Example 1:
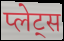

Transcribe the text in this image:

प्‍लेट्स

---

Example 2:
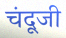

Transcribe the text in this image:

चंदूजी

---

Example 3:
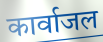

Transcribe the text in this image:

कार्वाजल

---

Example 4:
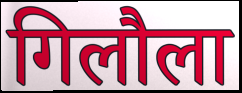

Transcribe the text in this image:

गिलौला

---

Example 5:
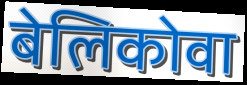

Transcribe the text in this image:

बेलिकोवा